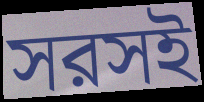
সরসই